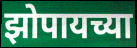
झोपायच्या